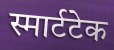
स्मार्टटेक